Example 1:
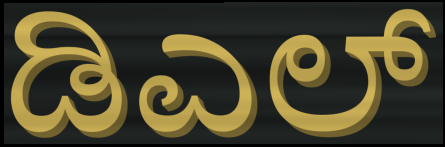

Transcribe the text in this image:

ಡಿಎಲ್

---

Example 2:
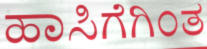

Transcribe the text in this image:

ಹಾಸಿಗೆಗಿಂತ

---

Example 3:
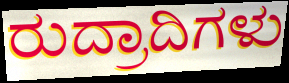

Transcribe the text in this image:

ರುದ್ರಾದಿಗಳು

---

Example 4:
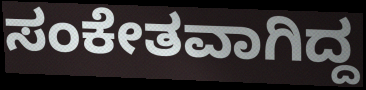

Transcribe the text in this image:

ಸಂಕೇತವಾಗಿದ್ದ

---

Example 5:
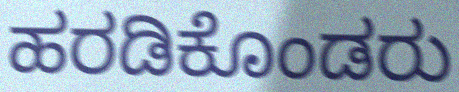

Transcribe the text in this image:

ಹರಡಿಕೊಂಡರು